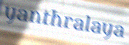
yanthralaya